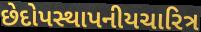
છેદોપસ્થાપનીયચારિત્ર